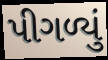
પીગળ્યું